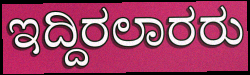
ಇದ್ದಿರಲಾರರು